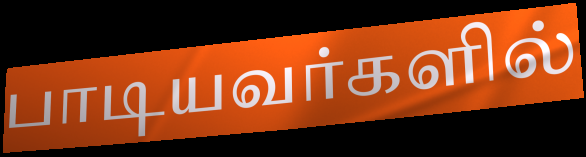
பாடியவர்களில்